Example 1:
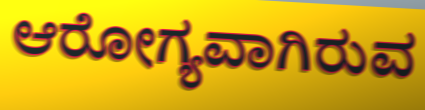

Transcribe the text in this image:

ಆರೋಗ್ಯವಾಗಿರುವ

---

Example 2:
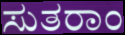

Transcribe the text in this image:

ಸುತರಾಂ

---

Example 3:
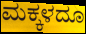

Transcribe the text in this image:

ಮಕ್ಕಳದೂ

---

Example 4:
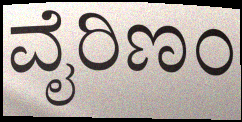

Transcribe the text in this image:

ವೈರಿಣಂ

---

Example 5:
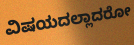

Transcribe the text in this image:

ವಿಷಯದಲ್ಲಾದರೋ